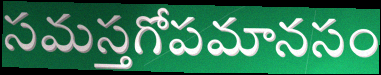
సమస్తగోపమానసం